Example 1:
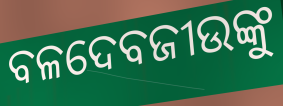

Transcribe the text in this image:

ବଳଦେବଜୀଉଙ୍କୁ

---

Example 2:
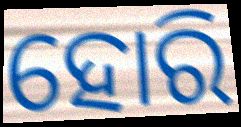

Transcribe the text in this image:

ହୋରି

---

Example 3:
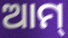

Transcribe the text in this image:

ଆମ୍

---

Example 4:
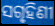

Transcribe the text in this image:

ସଗୃହିଣୀ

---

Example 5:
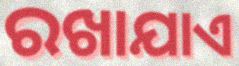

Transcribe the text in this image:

ରଖାଯାଏ